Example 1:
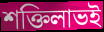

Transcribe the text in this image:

শক্তিলাভই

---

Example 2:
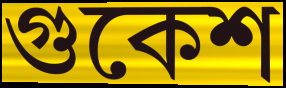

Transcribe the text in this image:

গুকেশ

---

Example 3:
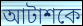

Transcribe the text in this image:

আটাশকে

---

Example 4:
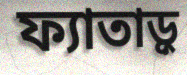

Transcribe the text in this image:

ফ্যাতাড়ু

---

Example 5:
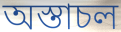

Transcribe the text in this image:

অস্তাচল